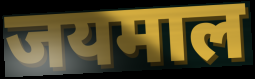
जयमाल